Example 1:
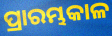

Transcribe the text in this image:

ପ୍ରାରମ୍ଭକାଳ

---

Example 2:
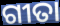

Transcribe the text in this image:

ଗୀତା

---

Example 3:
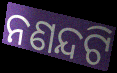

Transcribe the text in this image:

ନଣନ୍ଦଟି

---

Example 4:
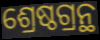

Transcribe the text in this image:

ଶ୍ରେଷ୍ଠଗ୍ରନ୍ଥ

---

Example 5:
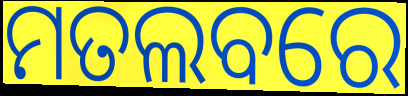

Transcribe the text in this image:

ମତଲବରେ